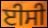
ਈਸੀ